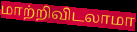
மாற்றிவிடலாமா